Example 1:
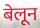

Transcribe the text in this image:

बेलून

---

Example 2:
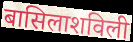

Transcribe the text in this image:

बासिलाशविली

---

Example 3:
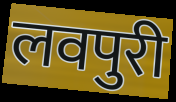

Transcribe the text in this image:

लवपुरी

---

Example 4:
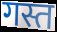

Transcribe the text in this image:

गस्त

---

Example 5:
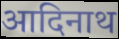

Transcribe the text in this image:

आदिनाथ